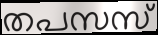
തപസസ്